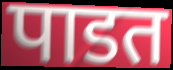
पाडत